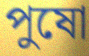
পুষো